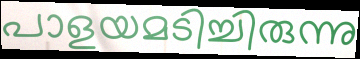
പാളയമടിച്ചിരുന്നു